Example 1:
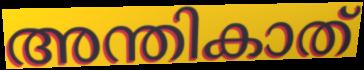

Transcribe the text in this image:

അന്തികാത്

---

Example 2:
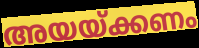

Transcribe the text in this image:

അയയ്ക്കണം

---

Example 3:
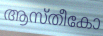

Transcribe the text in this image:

ആസ്തീകോ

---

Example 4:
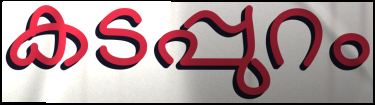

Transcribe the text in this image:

കടപ്പുറം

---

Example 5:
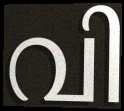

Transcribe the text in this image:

വി